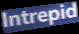
Intrepid